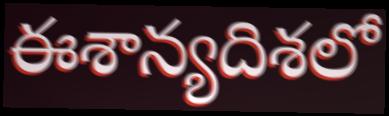
ఈశాన్యదిశలో